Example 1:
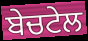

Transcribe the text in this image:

ਬੇਚਟੇਲ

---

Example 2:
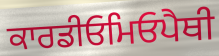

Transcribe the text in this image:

ਕਾਰਡੀਓਮਿਓਪੈਥੀ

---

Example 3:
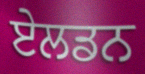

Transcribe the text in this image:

ਏਲਡਨ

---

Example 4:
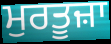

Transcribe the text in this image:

ਮੁਰਤੂਜ਼ਾ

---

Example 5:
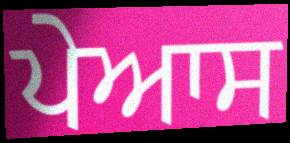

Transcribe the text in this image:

ਪੇਆਸ